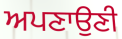
ਅਪਣਾਉਣੀ